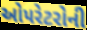
ઓપરેટરોની